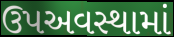
ઉપઅવસ્થામાં